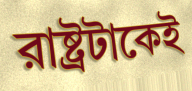
রাষ্ট্রটাকেই